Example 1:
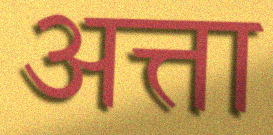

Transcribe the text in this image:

अत्ता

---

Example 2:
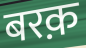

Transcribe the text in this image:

बरक़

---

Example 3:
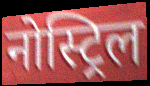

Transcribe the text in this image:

नोस्ट्रिल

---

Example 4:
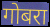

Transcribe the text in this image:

गोबरा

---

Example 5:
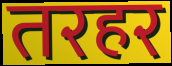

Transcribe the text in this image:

तरहर